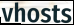
vhosts